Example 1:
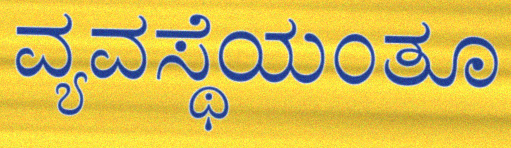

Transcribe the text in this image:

ವ್ಯವಸ್ಥೆಯಂತೂ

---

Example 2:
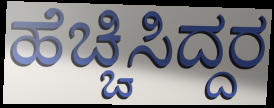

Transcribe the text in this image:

ಹೆಚ್ಚಿಸಿದ್ದರ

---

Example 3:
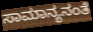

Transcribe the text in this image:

ಸಾಮಾನ್ಯನಂತೆ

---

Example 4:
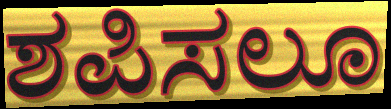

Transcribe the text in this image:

ಶಪಿಸಲೂ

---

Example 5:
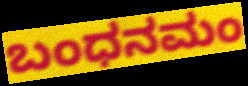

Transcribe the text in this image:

ಬಂಧನಮಂ